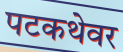
पटकथेवर